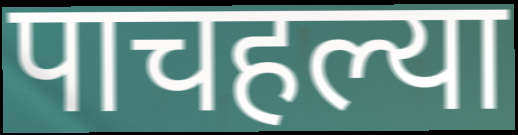
पाचहल्या